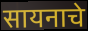
सायनाचे